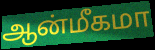
ஆன்மீகமா